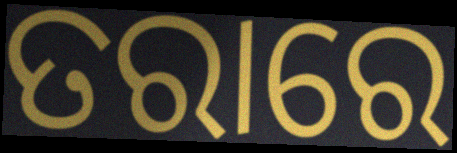
ତରାରେ